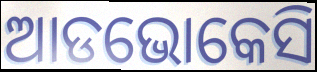
ଆଡଭୋକେସି